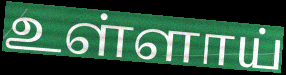
உள்ளாய்